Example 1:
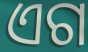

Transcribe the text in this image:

ଏଗ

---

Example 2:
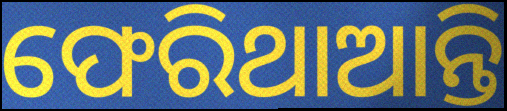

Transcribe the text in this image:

ଫେରିଥାଆନ୍ତି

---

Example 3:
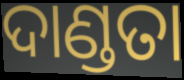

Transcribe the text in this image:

ଦାଣ୍ଡତା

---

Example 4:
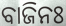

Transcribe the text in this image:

ବାଜିନଃ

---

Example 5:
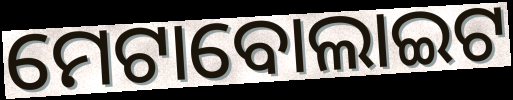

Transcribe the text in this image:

ମେଟାବୋଲାଇଟ